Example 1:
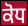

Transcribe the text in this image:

ਕੋਧ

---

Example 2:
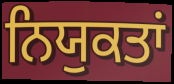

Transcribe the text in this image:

ਨਿਯੁਕਤਾਂ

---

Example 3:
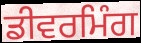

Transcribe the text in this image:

ਡੀਵਰਮਿੰਗ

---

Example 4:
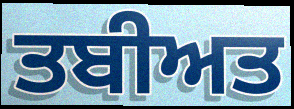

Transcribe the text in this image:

ਤਬੀਅਤ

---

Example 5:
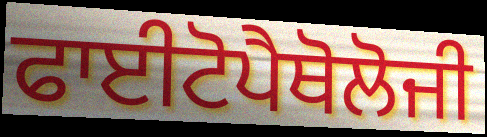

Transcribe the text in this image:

ਫਾਈਟੋਪੈਥੋਲੋਜੀ